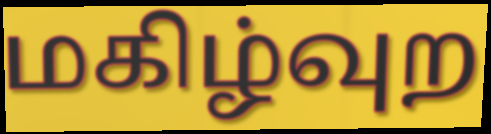
மகிழ்வுற